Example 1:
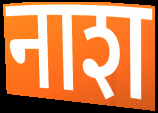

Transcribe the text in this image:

नाश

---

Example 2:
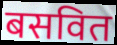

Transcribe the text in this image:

बसवित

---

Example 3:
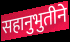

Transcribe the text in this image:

सहानुभुतीने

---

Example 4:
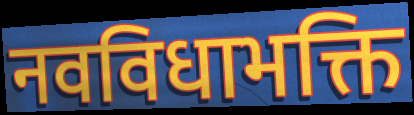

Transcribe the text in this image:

नवविधाभक्ति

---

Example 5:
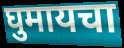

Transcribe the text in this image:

घुमायचा